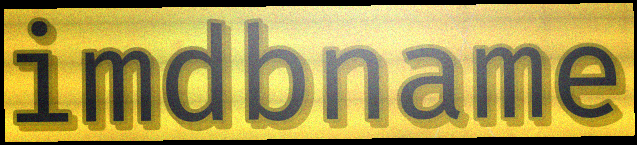
imdbname